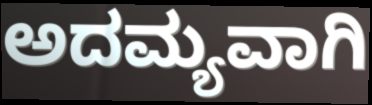
ಅದಮ್ಯವಾಗಿ